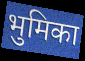
भुमिका